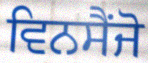
ਵਿਨਸੈਂਜੋ